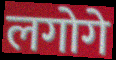
लगोगे